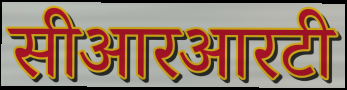
सीआरआरटी